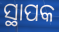
ସ୍ଥାପକ